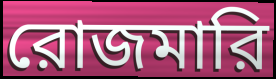
রোজমারি